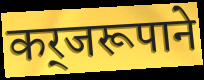
कर्जरूपाने